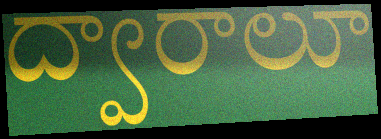
ద్వారాలూ